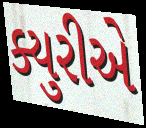
ક્યુરીએ